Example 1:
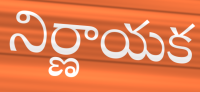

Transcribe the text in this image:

నిర్ణాయక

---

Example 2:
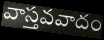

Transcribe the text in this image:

వాస్తవవాదం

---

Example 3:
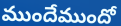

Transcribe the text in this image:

ముందేముందో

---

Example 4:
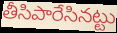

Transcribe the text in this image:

తీసిపారేసినట్టు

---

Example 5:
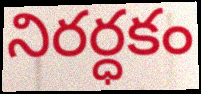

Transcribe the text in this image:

నిరర్ధకం